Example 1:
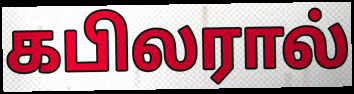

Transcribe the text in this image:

கபிலரால்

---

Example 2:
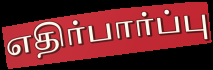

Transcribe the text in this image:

எதிர்பார்ப்பு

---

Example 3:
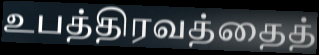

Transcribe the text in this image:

உபத்திரவத்தைத்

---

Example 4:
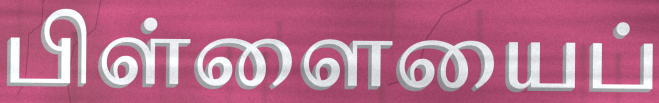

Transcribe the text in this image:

பிள்ளையைப்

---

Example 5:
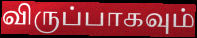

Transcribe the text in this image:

விருப்பாகவும்